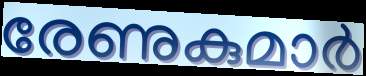
രേണുകുമാർ